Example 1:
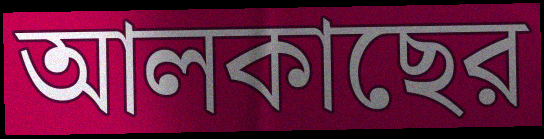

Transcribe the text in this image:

আলকাছের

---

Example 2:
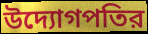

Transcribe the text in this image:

উদ্যোগপতির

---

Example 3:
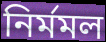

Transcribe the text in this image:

নির্মমল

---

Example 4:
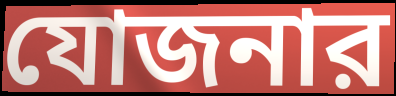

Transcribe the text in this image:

যোজনার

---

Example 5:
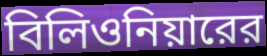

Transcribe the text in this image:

বিলিওনিয়ারের